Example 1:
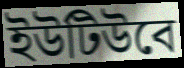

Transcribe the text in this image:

ইউটিউবে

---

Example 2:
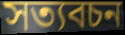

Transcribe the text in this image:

সত্যবচন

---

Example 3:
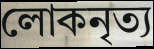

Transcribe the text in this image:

লোকনৃত্য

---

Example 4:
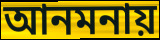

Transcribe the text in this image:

আনমনায়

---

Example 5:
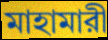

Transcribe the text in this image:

মাহামারী